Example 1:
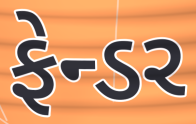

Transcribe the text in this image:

ફેન્ડર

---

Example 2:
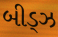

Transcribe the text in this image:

બીડ્ઝ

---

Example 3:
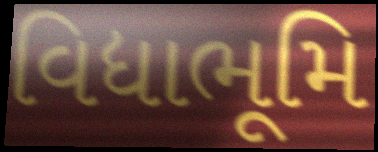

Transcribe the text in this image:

વિદ્યાભૂમિ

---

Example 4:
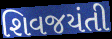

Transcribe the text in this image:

શિવજયંતી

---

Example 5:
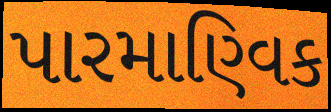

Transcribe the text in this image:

પારમાણ્વિક